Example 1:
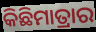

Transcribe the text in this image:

କିଛିମାତ୍ରାର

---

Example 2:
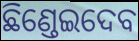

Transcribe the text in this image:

ଛିଣ୍ଡେଇଦେବ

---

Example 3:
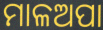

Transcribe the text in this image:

ମାଳଅପା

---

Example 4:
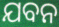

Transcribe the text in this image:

ଯବନ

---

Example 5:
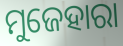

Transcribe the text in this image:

ମୁଜେହାରା